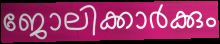
ജോലിക്കാർക്കും